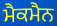
ਮੈਕਮੈਨ